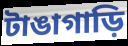
টাঙাগাড়ি